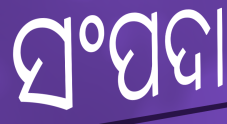
ସଂପଦା